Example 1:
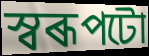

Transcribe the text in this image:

স্বৰূপটো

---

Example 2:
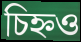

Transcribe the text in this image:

চিহ্নও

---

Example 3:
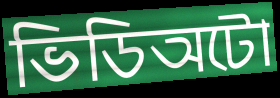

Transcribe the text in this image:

ভিডিঅটো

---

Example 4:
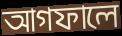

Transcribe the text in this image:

আগফালে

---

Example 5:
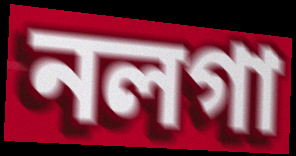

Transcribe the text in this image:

নলগা